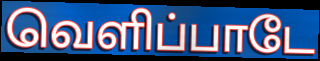
வெளிப்பாடே